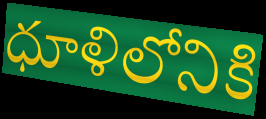
ధూళిలోనికి